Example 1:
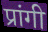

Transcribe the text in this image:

प्रांगी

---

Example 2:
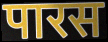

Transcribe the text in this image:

पारस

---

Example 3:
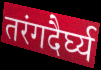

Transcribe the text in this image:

तरंगदैर्घ्य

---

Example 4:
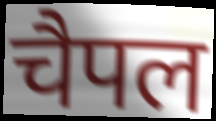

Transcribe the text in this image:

चैपल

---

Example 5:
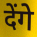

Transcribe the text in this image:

देंगे